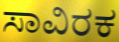
ಸಾವಿರಕ